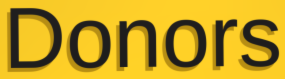
Donors